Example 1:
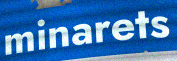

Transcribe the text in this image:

minarets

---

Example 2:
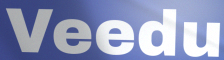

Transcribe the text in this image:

Veedu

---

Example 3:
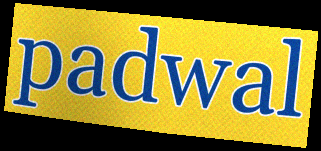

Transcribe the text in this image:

padwal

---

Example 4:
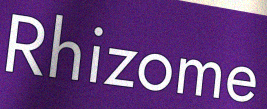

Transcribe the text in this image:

Rhizome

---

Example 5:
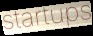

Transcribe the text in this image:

startups